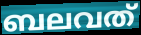
ബലവത്